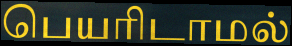
பெயரிடாமல்